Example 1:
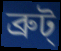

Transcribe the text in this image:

ব্রুট্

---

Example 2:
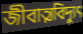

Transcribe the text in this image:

জীবাত্মবিদ্যুৎ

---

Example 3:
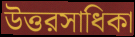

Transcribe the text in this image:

উত্তরসাধিকা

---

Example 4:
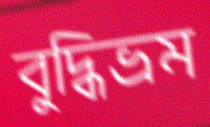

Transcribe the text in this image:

বুদ্ধিভ্রম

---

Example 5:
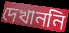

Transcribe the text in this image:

দেখাননি